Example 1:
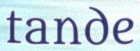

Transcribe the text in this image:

tande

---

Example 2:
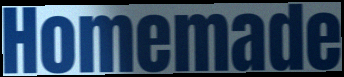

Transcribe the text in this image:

Homemade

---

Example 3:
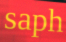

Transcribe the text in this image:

saph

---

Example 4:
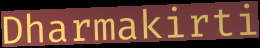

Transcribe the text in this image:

Dharmakirti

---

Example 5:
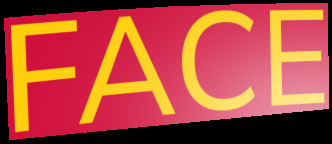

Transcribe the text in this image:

FACE